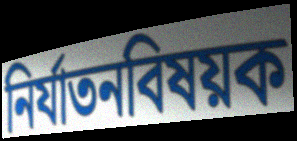
নির্যাতনবিষয়ক